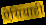
ऐसियाही